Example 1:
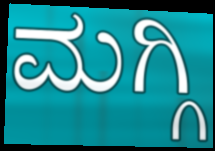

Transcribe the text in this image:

ಮಗ್ಗಿ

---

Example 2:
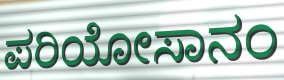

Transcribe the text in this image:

ಪರಿಯೋಸಾನಂ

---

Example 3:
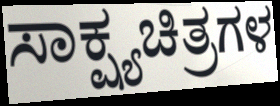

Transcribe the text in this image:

ಸಾಕ್ಷ್ಯಚಿತ್ರಗಳ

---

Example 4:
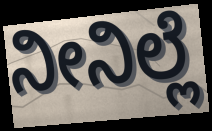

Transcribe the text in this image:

ನೀನಿಲ್ಲೆ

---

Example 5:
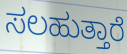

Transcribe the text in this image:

ಸಲಹುತ್ತಾರೆ